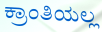
ಕ್ರಾಂತಿಯಲ್ಲ